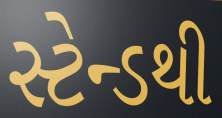
સ્ટેન્ડથી